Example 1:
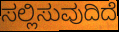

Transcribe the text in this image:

ಸಲ್ಲಿಸುವುದಿದೆ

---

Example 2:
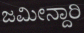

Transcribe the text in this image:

ಜಮೀನ್ದಾರಿ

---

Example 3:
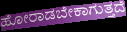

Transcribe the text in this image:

ಹೋರಾಡಬೇಕಾಗುತ್ತದೆ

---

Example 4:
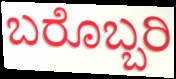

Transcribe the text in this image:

ಬರೊಬ್ಬರಿ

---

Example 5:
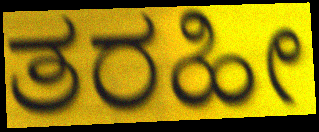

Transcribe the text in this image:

ತರಹೀ